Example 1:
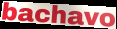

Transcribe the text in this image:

bachavo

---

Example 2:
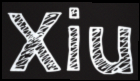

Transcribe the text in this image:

Xiu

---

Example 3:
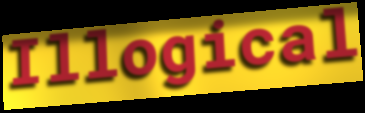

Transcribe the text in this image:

Illogical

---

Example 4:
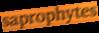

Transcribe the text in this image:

saprophytes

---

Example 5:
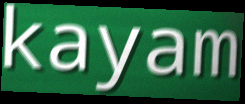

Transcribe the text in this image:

kayam